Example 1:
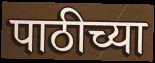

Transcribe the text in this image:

पाठीच्या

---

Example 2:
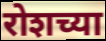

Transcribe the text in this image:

रोशच्या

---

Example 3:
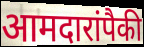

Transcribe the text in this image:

आमदारांपैकी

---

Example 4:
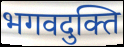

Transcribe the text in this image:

भगवदुक्ति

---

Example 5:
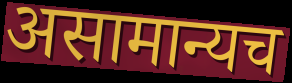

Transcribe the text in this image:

असामान्यच